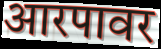
आरपावर